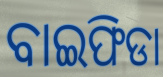
ବାଇଫିଡା